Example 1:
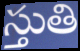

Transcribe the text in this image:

స్తుతి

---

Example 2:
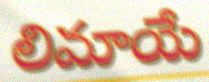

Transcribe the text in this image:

లిమాయే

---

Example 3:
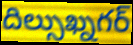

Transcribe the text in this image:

దిల్సుఖ్నగర్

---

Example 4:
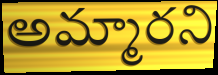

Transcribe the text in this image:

అమ్మారని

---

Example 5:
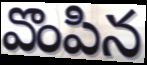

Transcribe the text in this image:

వొంపిన